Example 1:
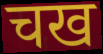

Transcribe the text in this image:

चख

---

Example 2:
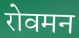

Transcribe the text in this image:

रोवमन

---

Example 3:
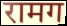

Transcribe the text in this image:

रामग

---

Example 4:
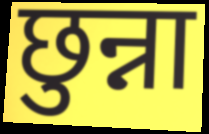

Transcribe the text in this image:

छुन्ना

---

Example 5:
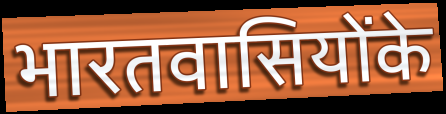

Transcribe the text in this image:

भारतवासियोंके